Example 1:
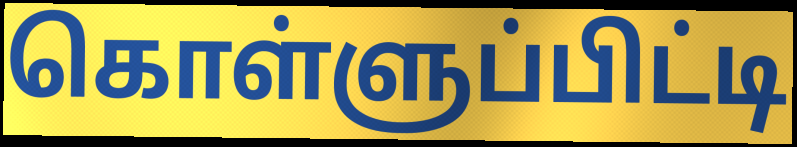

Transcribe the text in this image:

கொள்ளுப்பிட்டி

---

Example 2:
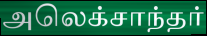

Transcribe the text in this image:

அலெக்சாந்தர்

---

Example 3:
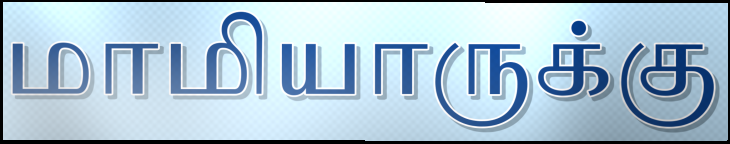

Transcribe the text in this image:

மாமியாருக்கு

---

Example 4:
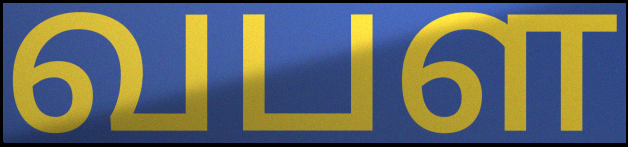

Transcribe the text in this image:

வபள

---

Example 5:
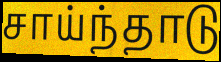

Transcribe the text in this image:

சாய்ந்தாடு